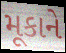
મૂકાને